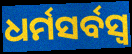
ଧର୍ମସର୍ବସ୍ୱ